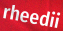
rheedii